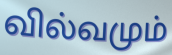
வில்வமும்